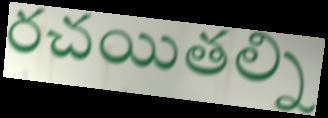
రచయితల్ని